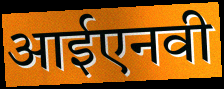
आईएनवी